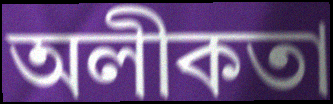
অলীকতা